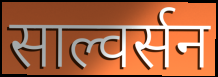
साल्वर्सन